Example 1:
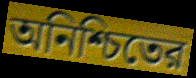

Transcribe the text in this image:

অনিশ্চিতের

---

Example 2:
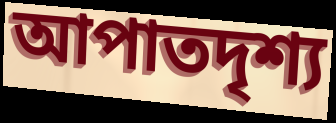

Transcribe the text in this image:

আপাতদৃশ্য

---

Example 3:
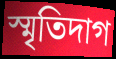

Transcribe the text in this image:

স্মৃতিদাগ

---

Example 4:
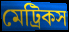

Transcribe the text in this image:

মেট্রিকস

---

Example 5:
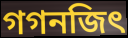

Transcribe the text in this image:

গগনজিৎ